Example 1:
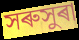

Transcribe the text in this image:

সৰুসুৰা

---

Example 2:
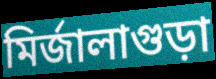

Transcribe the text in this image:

মিৰ্জালাগুড়া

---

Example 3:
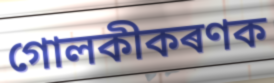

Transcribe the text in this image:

গোলকীকৰণক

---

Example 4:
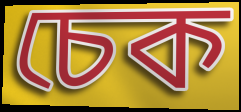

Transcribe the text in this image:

চেক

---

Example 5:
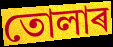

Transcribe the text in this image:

তোলাৰ